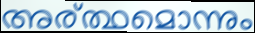
അര്ത്ഥമൊന്നും